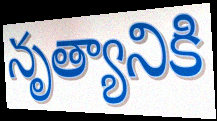
నృత్యానికి